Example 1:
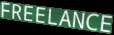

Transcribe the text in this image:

FREELANCE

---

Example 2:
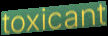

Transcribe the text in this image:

toxicant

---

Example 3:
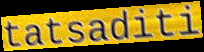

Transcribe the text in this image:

tatsaditi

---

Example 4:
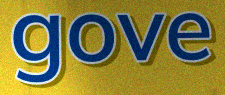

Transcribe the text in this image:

gove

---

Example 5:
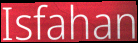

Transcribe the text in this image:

Isfahan